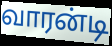
வாரன்டி